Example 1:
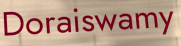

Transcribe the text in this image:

Doraiswamy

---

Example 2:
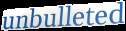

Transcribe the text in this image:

unbulleted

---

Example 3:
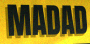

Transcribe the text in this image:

MADAD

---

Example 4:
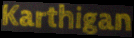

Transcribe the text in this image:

Karthigan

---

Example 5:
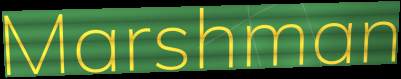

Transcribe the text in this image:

Marshman